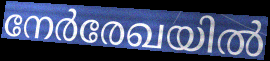
നേർരേഖയിൽ